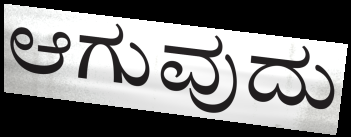
ಆಗುವುದು